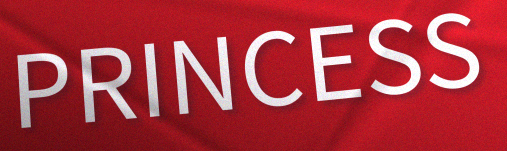
PRINCESS